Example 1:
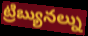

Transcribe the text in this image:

ట్రిబ్యునల్ను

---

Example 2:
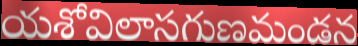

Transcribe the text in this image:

యశోవిలాసగుణమండన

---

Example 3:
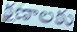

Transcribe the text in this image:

క్షణాలకు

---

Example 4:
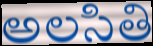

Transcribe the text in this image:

అలసితి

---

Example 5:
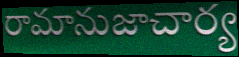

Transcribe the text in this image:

రామానుజాచార్య